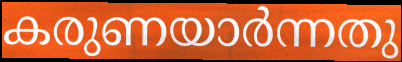
കരുണയാർന്നതു